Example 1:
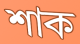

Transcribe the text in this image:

শাক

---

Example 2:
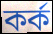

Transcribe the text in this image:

কৰ্ক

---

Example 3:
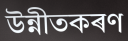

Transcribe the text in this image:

উন্নীতকৰণ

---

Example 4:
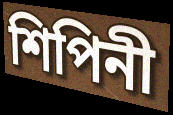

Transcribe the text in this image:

শিপিনী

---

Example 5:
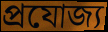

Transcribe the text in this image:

প্ৰযোজ্য